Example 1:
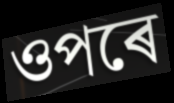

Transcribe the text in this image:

ওপৰে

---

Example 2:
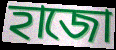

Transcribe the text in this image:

হাজো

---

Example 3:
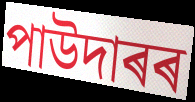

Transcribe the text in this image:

পাউদাৰৰ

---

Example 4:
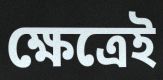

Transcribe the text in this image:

ক্ষেত্ৰেই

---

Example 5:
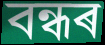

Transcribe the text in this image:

বন্ধৰ